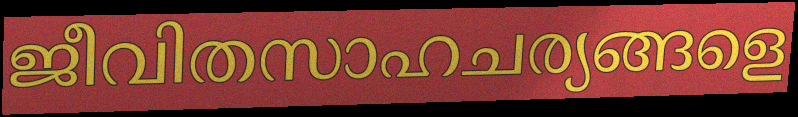
ജീവിതസാഹചര്യങ്ങളെ